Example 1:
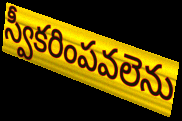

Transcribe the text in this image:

స్వీకరింపవలెను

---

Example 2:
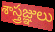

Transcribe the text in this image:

శాస్త్రజ్ఞులు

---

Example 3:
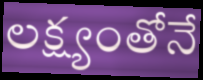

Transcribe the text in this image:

లక్ష్యంతోనే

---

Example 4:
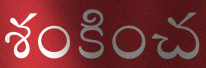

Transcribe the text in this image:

శంకించ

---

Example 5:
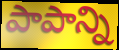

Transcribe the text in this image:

పాపాన్ని